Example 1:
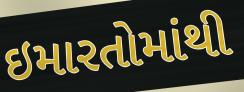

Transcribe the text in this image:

ઇમારતોમાંથી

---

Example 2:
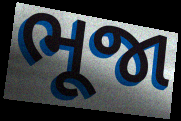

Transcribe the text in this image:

ભૂજા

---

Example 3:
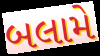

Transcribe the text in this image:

બલામે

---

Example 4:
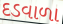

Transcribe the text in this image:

દડવાળા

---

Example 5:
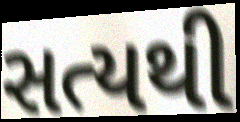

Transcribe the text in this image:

સત્યથી